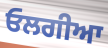
ਓਲਗੀਆ